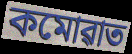
কমোৱাত